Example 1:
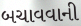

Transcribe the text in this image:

બચાવવાની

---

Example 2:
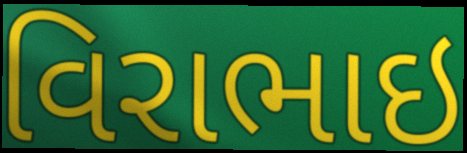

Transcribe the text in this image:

વિરાભાઇ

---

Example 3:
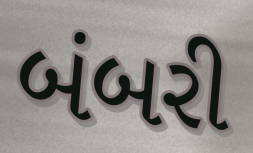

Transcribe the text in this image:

બંબરી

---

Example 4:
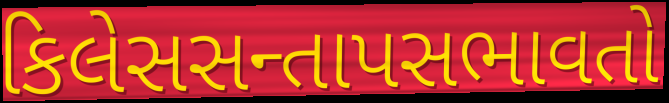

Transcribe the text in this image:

કિલેસસન્તાપસભાવતો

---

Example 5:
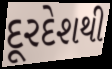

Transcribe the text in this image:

દૂરદેશથી